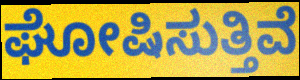
ಘೋಷಿಸುತ್ತಿವೆ